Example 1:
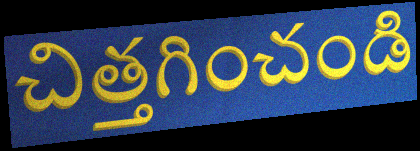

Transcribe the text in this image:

చిత్తగించండి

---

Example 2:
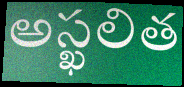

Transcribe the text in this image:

అస్ఖలిత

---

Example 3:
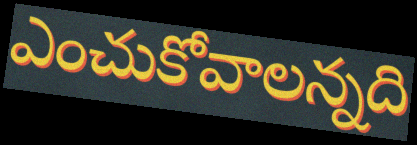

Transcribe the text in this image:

ఎంచుకోవాలన్నది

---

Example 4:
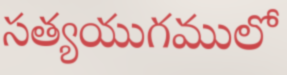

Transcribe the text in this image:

సత్యయుగములో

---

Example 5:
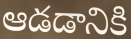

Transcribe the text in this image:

ఆడడానికి